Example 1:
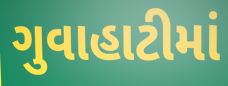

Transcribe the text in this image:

ગુવાહાટીમાં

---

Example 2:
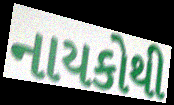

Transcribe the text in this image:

નાયકોથી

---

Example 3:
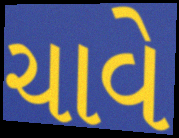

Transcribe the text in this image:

ચાવે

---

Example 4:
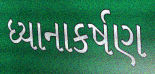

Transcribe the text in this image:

ધ્યાનાકર્ષણ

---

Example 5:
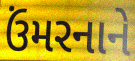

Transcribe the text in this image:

ઉંમરનાને